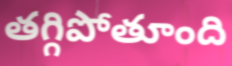
తగ్గిపోతూంది